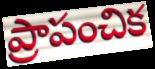
ప్రాపంచిక